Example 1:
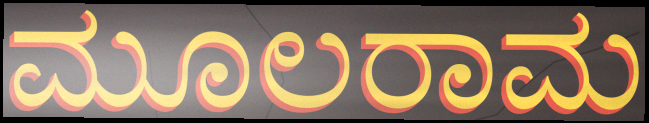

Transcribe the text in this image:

ಮೂಲರಾಮ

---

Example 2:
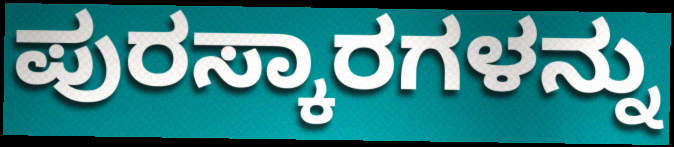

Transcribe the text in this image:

ಪುರಸ್ಕಾರಗಳನ್ನು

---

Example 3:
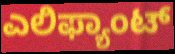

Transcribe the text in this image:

ಎಲಿಫ್ಯಾಂಟ್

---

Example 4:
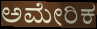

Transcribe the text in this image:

ಅಮೇರಿಕ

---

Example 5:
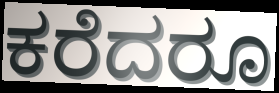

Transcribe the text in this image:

ಕರೆದರೂ